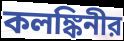
কলঙ্কিনীর